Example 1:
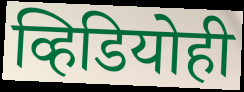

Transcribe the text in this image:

व्हिडियोही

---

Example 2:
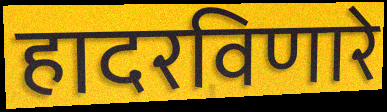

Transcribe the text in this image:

हादरविणारे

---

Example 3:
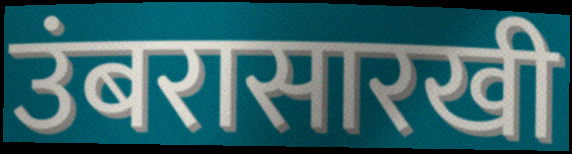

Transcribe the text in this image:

उंबरासारखी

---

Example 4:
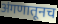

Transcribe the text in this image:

अंगणातूनच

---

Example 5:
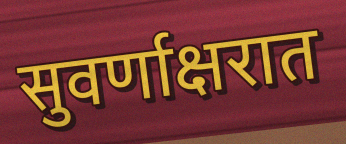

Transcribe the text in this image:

सुवर्णाक्षरात